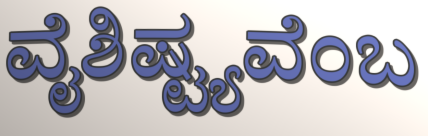
ವೈಶಿಷ್ಟ್ಯವೆಂಬ